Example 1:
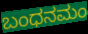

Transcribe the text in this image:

ಬಂಧನಮಂ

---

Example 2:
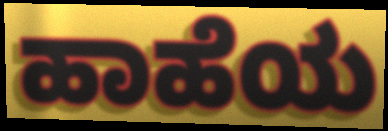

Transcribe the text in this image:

ಹಾಹೆಯ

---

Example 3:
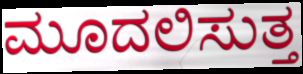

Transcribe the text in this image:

ಮೂದಲಿಸುತ್ತ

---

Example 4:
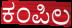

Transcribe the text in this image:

ಕಂಪಿಲ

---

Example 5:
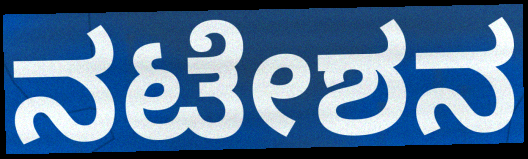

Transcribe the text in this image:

ನಟೇಶನ